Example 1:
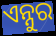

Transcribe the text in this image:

ଏନ୍ନୁର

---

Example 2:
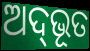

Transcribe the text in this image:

ଅଦ୍‌ଭୂତ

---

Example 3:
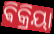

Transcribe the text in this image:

ଵିକ୍ରିୟା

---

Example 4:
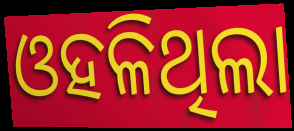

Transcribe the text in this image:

ଓହଳିଥିଲା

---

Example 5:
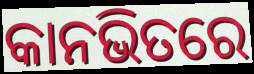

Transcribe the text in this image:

କାନଭିତରେ